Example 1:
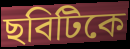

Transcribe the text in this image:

ছবিটিকে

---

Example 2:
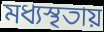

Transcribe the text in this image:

মধ্যস্থতায়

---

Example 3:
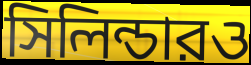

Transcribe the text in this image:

সিলিন্ডারও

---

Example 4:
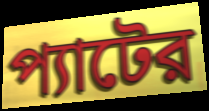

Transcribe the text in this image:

প্যাটের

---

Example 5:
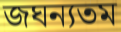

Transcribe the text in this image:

জঘন্যতম